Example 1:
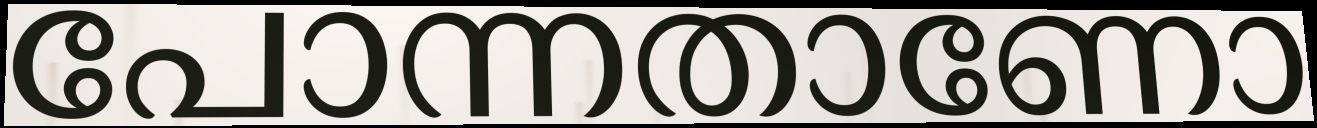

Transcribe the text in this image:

പോന്നതാണോ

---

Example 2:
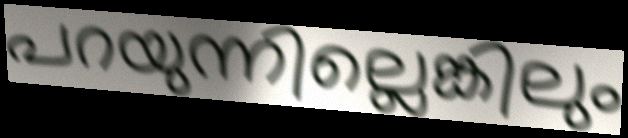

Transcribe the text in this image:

പറയുന്നില്ലെങ്കിലും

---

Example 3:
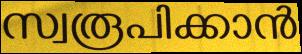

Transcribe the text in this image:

സ്വരൂപിക്കാൻ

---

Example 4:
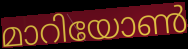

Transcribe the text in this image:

മാറിയോൺ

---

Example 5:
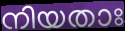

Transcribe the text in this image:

നിയതാഃ